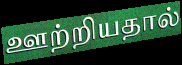
ஊற்றியதால்